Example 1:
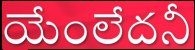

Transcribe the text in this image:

యేంలేదనీ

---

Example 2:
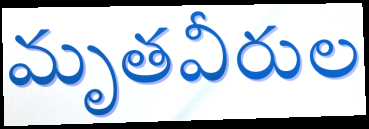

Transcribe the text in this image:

మృతవీరుల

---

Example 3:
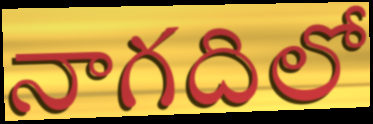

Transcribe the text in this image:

నాగదిలో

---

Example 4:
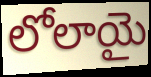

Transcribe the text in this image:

లోలాయై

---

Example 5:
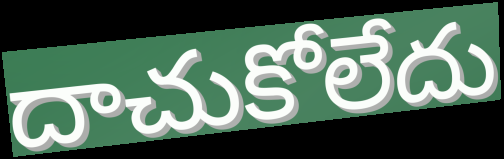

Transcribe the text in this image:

దాచుకోలేదు